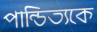
পান্ডিত্যকে